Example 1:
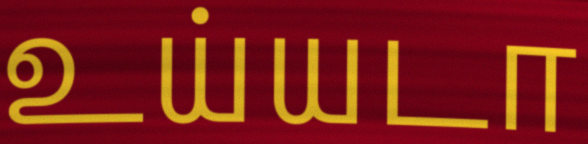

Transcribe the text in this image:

உய்யடா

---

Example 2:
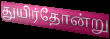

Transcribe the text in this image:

துயிர்தோன்று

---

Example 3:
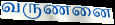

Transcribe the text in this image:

வருணனை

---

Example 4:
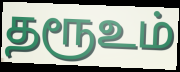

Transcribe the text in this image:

தரூஉம்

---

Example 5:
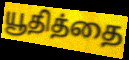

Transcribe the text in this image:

யூதித்தை